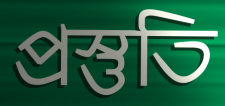
প্ৰস্তুতি